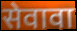
सेवावा